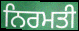
ਨਿਰਮਤੀ